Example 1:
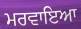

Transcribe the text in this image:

ਮਰਵਾਇਆ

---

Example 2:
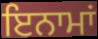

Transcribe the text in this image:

ਇਨਾਮਾਂ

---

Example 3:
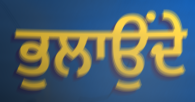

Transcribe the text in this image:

ਭੁਲਾਉਂਦੇ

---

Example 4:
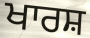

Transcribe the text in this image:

ਖਾਰਸ਼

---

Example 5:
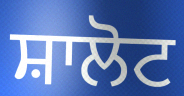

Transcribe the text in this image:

ਸ਼ਾਲੋਟ